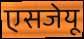
एसजेयू